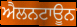
ਐਲਨਟਾਊਨ